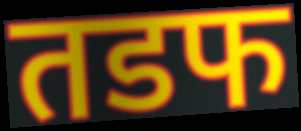
तडफ